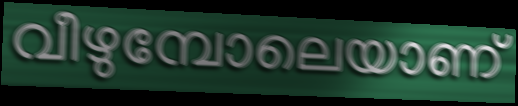
വീഴുമ്പോലെയാണ്